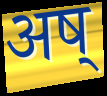
अष्